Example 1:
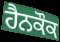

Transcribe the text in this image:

ਹੈਨਕੌਕ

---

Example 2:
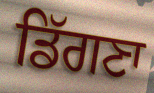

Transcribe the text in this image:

ਡਿੱਗਣਾ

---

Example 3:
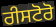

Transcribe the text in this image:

ਰੀਸਟੋਰੋ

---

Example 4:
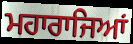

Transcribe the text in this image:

ਮਹਾਰਾਜਿਆਂ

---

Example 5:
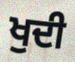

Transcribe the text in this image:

ਖੁਦੀ